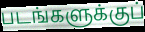
படங்களுக்குப்